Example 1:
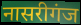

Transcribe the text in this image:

नासरीगंज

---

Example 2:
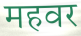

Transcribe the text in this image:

महवर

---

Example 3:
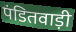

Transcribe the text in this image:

पंडितवाड़ी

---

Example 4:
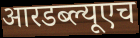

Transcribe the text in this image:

आरडब्ल्यूएच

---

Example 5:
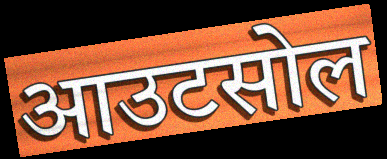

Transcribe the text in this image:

आउटसोल